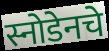
स्नोडेनचे